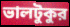
ভালটুকুর